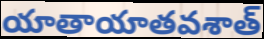
యాతాయాతవశాత్